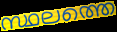
സ്ഥലത്തെ